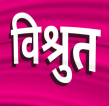
विश्रुत